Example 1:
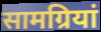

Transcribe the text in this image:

सामग्रियां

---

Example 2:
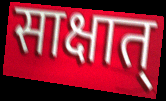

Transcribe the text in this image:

साक्षात्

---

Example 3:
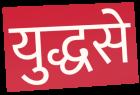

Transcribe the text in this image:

युद्धसे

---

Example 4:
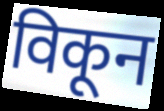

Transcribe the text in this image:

विकून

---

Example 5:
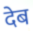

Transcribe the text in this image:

देब